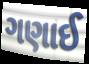
ગણાઈ